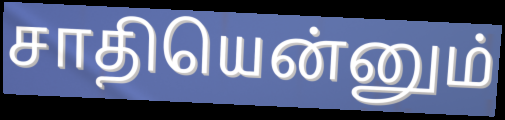
சாதியென்னும்